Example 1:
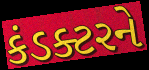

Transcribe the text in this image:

કંડક્ટરને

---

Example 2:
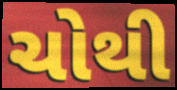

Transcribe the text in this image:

ચોથી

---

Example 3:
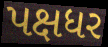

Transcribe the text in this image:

પક્ષધર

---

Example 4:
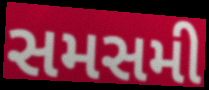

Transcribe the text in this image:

સમસમી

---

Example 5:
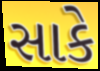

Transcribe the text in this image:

સાકે